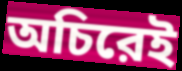
অচিরেই